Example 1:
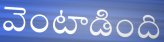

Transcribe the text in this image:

వెంటాడింది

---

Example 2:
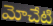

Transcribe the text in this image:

మోచేటి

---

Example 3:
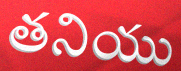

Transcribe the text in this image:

తనియు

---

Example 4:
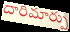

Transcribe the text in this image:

దారిమార్పు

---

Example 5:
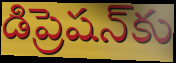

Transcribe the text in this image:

డిప్రెషన్‌కు